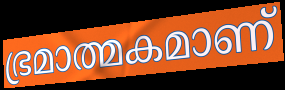
ഭ്രമാത്മകമാണ്